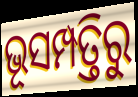
ଭୂସମ୍ପତ୍ତିରୁ